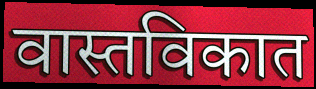
वास्तविकात